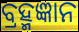
ବ୍ରହ୍ମଜ୍ଞାନ